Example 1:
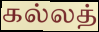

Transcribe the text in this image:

கல்லத்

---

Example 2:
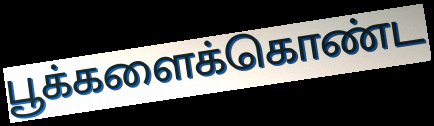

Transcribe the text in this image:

பூக்களைக்கொண்ட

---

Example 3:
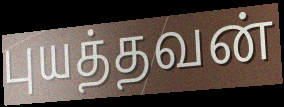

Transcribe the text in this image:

புயத்தவன்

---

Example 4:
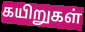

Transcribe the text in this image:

கயிறுகள்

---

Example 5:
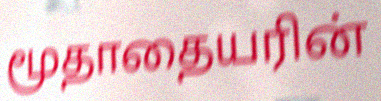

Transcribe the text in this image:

மூதாதையரின்